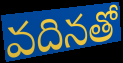
వదినతో